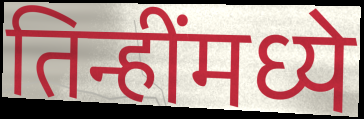
तिन्हींमध्ये